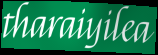
tharaiyilea